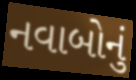
નવાબોનું